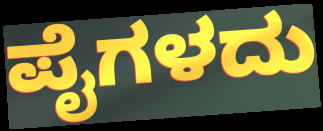
ಪೈಗಳದು